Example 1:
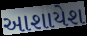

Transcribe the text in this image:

આશાયેશ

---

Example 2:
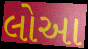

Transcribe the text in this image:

લોઆ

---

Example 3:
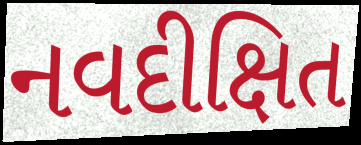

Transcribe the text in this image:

નવદીક્ષિત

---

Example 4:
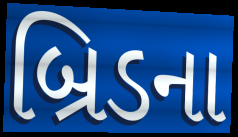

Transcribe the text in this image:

બ્રિડના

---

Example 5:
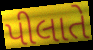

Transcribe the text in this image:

પીલાતે